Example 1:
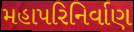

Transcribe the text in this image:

મહાપરિનિર્વાણ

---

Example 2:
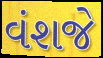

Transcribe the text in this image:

વંશજે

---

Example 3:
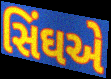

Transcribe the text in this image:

સિંઘએ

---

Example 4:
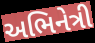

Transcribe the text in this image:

અભિનેત્રી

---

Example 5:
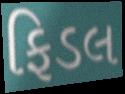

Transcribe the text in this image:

ફિડલ